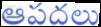
ఆపదలు